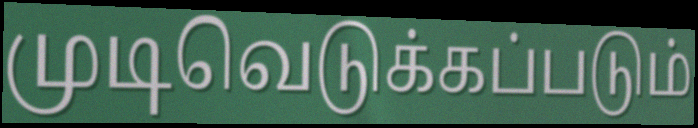
முடிவெடுக்கப்படும்